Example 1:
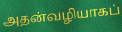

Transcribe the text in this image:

அதன்வழியாகப்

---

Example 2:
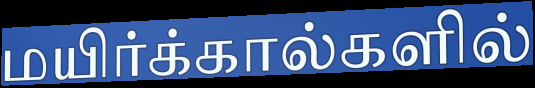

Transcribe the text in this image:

மயிர்க்கால்களில்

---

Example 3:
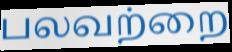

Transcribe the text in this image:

பலவற்றை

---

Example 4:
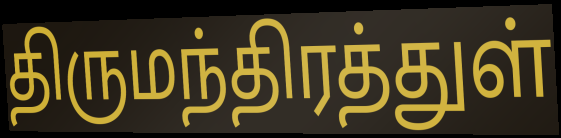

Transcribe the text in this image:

திருமந்திரத்துள்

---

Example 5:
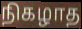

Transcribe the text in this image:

நிகழாத